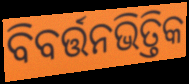
ବିବର୍ତ୍ତନଭିତ୍ତିକ